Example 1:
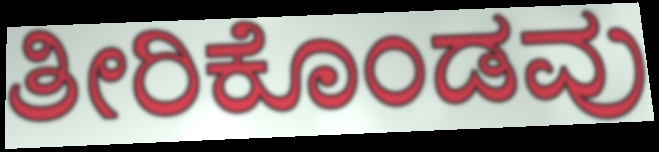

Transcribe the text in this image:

ತೀರಿಕೊಂಡವು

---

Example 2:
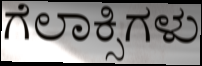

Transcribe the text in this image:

ಗೆಲಾಕ್ಸಿಗಳು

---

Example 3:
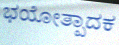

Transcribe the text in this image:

ಭಯೋತ್ಪಾದಕ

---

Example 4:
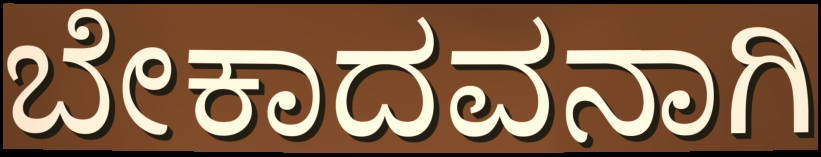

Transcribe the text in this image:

ಬೇಕಾದವನಾಗಿ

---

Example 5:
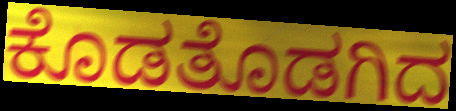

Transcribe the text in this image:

ಕೊಡತೊಡಗಿದ